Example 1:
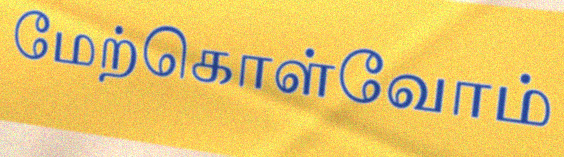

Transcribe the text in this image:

மேற்கொள்வோம்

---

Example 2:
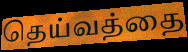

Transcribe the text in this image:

தெய்வத்தை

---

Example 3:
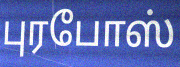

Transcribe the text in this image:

புரபோஸ்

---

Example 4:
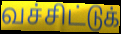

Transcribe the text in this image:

வச்சிட்டுக்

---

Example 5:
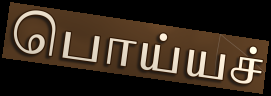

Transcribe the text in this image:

பொய்யச்